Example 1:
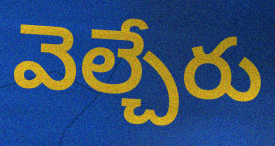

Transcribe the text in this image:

వెల్చేరు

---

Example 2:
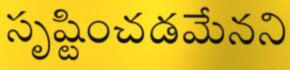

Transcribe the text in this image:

సృష్టించడమేనని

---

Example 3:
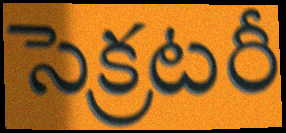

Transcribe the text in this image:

సెక్రటరీ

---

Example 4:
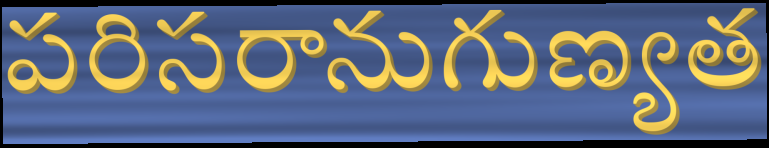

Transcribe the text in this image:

పరిసరానుగుణ్యత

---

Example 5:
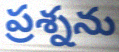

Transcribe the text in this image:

ప్రశ్నను